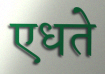
एधते